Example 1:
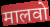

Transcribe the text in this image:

मालवो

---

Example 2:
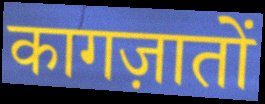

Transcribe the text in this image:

कागज़ातों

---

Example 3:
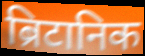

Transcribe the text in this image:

ब्रिटानिक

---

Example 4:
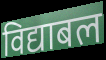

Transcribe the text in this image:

विद्याबल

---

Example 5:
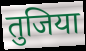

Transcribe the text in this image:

तुजिया